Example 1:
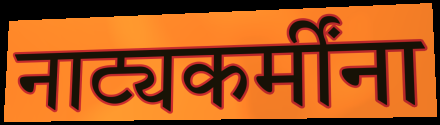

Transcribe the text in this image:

नाट्यकर्मींना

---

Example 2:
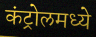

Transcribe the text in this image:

कंट्रोलमध्ये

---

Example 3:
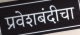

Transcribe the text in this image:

प्रवेशबंदीचा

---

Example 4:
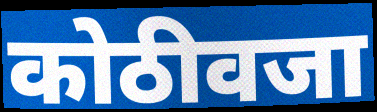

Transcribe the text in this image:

कोठीवजा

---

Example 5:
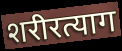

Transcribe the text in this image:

शरीरत्याग